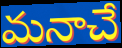
మనాచే